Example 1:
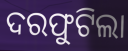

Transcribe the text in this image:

ଦରଫୁଟିଲା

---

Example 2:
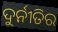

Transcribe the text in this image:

ଦୁର୍ନୀତିର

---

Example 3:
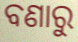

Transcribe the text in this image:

ବଣାରୁ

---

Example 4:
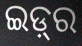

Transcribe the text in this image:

ଇଡ଼୍‍ର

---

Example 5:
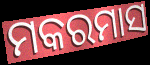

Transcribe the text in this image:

ମକରମାସ